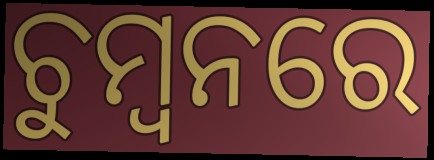
ଚୁମ୍ୱନରେ